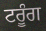
ਟਰੂੰਗ